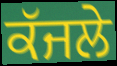
ਕੱਜਲੇ